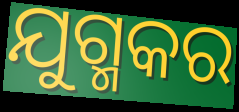
ଯୁଗ୍ମକର